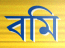
বমি